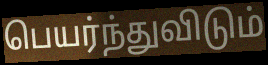
பெயர்ந்துவிடும்